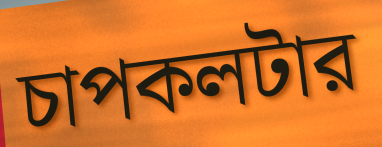
চাপকলটার